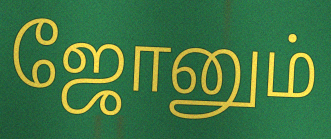
ஜோனும்